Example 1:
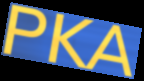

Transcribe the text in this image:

PKA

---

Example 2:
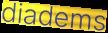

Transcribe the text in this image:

diadems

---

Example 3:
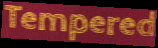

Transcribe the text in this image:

Tempered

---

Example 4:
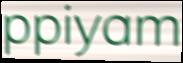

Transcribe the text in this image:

ppiyam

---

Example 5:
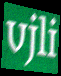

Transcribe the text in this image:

ujli